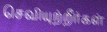
செவியுற்றீர்கள்